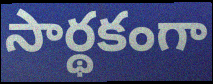
సార్థకంగా